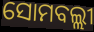
ସୋମବଲ୍ଲୀ